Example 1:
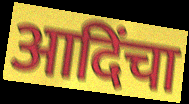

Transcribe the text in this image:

आदिंचा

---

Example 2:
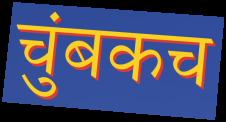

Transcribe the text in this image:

चुंबकच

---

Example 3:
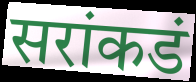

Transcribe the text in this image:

सरांकडं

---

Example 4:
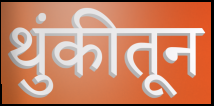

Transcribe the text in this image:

थुंकीतून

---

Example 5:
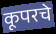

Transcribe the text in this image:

कूपरचे